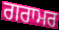
ਗਰਾਮਰ